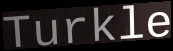
Turkle